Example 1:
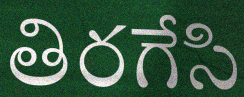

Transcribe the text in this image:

తిరగేసి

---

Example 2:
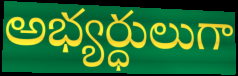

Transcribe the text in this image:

అభ్యర్ధులుగా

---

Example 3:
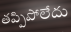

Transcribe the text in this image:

తప్పిపోలేదు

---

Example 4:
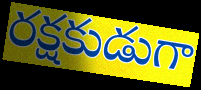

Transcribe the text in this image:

రక్షకుడుగా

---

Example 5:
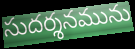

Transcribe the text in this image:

సుదర్శనమును